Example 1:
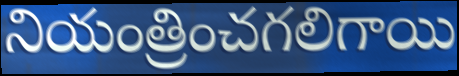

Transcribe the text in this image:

నియంత్రించగలిగాయి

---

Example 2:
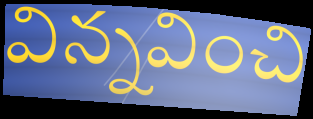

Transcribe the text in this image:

విన్నవించి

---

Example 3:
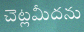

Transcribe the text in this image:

చెట్లమీదను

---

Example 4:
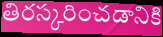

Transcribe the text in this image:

తిరస్కరించడానికి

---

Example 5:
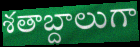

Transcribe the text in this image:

శతాబ్దాలుగా